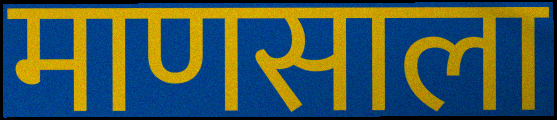
माणसाला